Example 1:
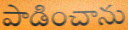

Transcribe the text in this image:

పాడించాను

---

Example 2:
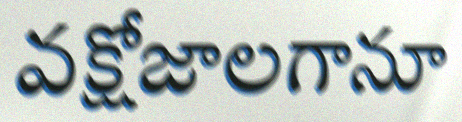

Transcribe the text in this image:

వక్షోజాలగానూ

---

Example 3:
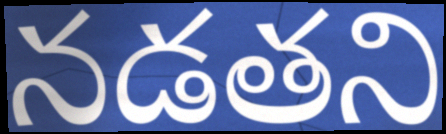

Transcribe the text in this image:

నడతని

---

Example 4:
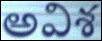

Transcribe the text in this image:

అవిశ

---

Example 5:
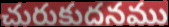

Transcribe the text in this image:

చురుకుదనము